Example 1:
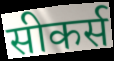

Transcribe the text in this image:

सीकर्स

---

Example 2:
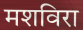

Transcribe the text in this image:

मशविरा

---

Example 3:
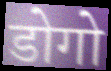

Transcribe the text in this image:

डोगो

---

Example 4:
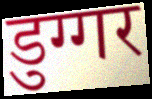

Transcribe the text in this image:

डुग्गर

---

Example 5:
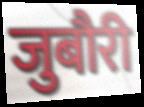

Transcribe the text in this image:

जुबौरी